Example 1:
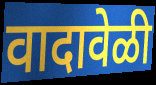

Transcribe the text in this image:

वादावेळी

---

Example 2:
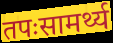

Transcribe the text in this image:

तपःसामर्थ्य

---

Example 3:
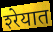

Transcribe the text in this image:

श्रेयात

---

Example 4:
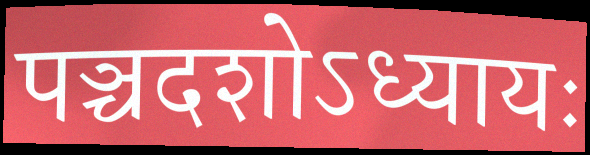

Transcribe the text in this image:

पञ्चदशोऽध्यायः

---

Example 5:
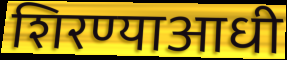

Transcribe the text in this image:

शिरण्याआधी